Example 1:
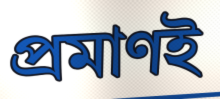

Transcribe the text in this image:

প্রমাণই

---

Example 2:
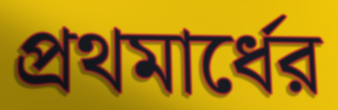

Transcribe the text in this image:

প্রথমার্ধের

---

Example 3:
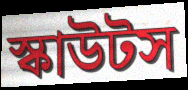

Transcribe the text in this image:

স্কাউটস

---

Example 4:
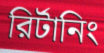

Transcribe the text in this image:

রির্টানিং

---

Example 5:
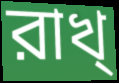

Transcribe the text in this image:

রাখ্